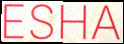
ESHA